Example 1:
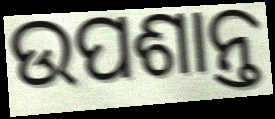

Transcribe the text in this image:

ଉପଶାନ୍ତ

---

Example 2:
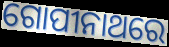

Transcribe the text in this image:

ଗୋପୀନାଥରେ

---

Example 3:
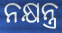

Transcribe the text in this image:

ନକ୍ଷନ୍ତ୍ର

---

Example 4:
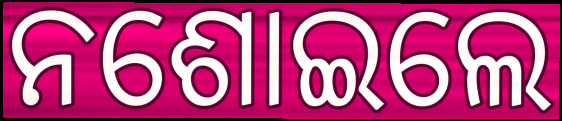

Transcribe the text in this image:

ନଶୋଇଲେ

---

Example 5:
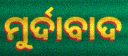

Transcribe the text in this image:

ମୁର୍ଦାବାଦ